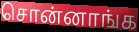
சொன்னாங்க